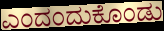
ಎಂದಂದುಕೊಂಡು